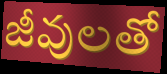
జీవులతో